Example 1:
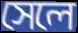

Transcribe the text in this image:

সেলে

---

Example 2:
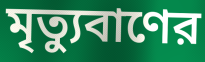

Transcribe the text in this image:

মৃত্যুবাণের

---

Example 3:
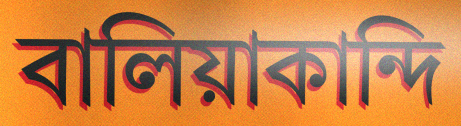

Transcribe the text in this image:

বালিয়াকান্দি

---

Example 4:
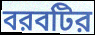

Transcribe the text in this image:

বরবটির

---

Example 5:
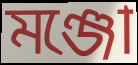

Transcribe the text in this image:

মঞ্জো